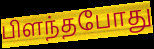
பிளந்தபோது